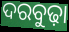
ଦରବୁଢ଼ା